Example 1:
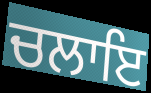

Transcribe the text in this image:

ਚਲਾਇ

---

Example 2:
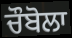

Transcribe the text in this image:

ਚੌਬੋਲਾ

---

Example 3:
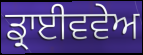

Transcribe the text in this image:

ਡ੍ਰਾਈਵਵੇਅ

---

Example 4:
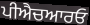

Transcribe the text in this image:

ਪੀਐਚਆਰਓ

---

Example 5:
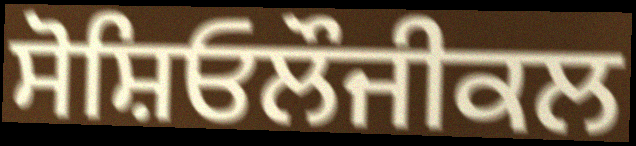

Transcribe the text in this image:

ਸੋਸ਼ਿਓਲੌਜੀਕਲ